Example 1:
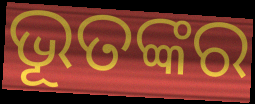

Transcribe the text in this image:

ଭୂତଙ୍କର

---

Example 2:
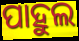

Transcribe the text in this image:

ପାହୁଲ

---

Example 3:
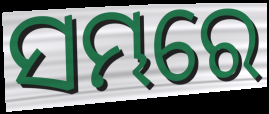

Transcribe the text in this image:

ସମ୍ଭରେ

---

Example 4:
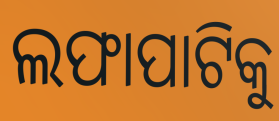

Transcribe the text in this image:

ଲଫାପାଟିକୁ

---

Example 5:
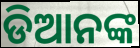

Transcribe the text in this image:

ଡିଆନଙ୍କ